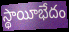
స్థాయీభేదం